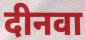
दीनवा